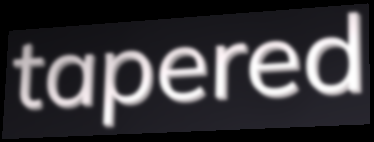
tapered